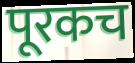
पूरकच